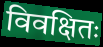
विवक्षितः